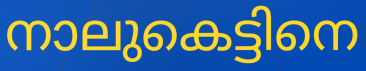
നാലുകെട്ടിനെ